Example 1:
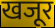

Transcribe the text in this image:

खजूर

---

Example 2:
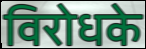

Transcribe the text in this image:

विरोधके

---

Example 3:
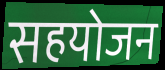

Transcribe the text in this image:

सहयोजन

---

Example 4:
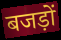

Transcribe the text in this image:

बजड़ों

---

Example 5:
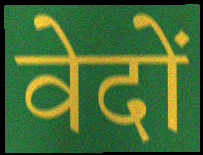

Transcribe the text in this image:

वेदों